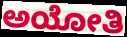
ಅಯೋತಿ